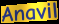
Anavil